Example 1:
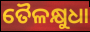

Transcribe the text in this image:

ତୈଳକ୍ଷୁଧା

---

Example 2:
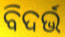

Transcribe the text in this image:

ବିଦର୍ଭ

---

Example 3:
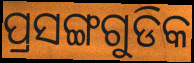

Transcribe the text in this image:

ପ୍ରସଙ୍ଗଗୁଡିକ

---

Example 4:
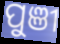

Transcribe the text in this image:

ପୁଞୀ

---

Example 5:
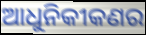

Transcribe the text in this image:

ଆଧୁନିକୀକଣର